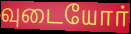
வுடையோர்